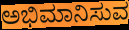
ಅಭಿಮಾನಿಸುವ